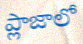
ప్లాజాలో